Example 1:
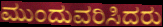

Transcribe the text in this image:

ಮುಂದುವರಿಸಿದರು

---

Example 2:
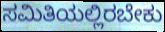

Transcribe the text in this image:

ಸಮಿತಿಯಲ್ಲಿರಬೇಕು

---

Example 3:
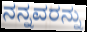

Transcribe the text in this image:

ನನ್ನವರನ್ನು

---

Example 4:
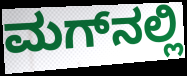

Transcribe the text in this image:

ಮಗ್‌ನಲ್ಲಿ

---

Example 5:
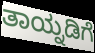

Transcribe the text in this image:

ತಾಯ್ನಡಿಗೆ